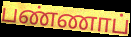
பண்ணாப்